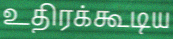
உதிரக்கூடிய